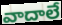
వాదాలే